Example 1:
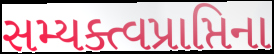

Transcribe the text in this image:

સમ્યક્ત્વપ્રાપ્તિના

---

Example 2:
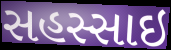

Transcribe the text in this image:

સહસ્સાઇ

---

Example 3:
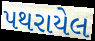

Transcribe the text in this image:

પથરાયેલ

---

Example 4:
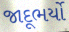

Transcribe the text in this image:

જાદૂભર્યો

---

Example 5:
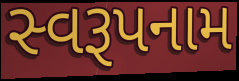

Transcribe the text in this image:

સ્વરૂપનામ